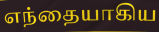
எந்தையாகிய